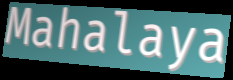
Mahalaya